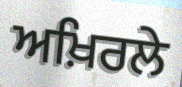
ਅਖ਼ਿਰਲੇ